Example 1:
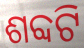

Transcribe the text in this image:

ଶବ୍ଦଟି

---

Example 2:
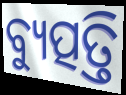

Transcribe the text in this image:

ବ୍ୟୁତ୍ପତ୍ତି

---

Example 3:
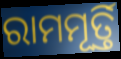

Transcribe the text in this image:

ରାମମୂର୍ତ୍ତି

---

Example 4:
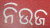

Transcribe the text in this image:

ନିଉଜ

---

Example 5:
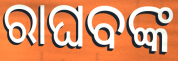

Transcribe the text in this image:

ରାଘବଙ୍କ